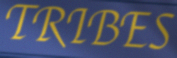
TRIBES